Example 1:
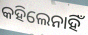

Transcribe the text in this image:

କହିଲେନାହିଁ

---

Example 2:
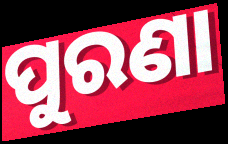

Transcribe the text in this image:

ପୁରଣା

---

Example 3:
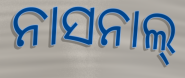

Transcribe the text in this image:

ନାସନାଲ୍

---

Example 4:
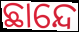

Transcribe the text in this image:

ଛାନ୍ଦେ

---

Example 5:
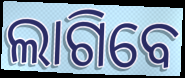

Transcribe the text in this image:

ଲାଗିବେ